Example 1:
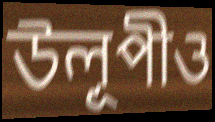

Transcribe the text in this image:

উলূপীও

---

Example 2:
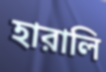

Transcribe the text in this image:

হারালি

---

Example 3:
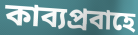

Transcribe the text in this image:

কাব্যপ্রবাহে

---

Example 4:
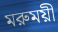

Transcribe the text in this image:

মরুময়ী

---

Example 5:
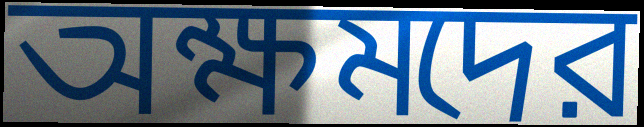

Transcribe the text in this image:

অক্ষমদের